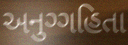
અનુગ્ગહિતા